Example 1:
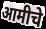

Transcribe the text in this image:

आमीचे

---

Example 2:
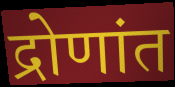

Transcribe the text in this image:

द्रोणांत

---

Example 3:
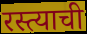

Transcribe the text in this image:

रस्त्याची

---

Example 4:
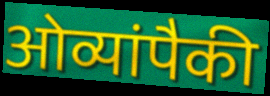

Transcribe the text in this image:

ओव्यांपैकी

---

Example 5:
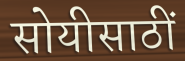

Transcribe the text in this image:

सोयीसाठीं